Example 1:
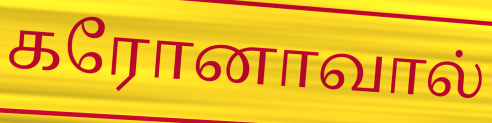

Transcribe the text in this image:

கரோனாவால்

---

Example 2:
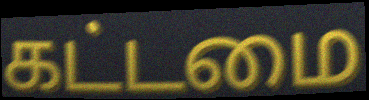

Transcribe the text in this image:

கட்டமை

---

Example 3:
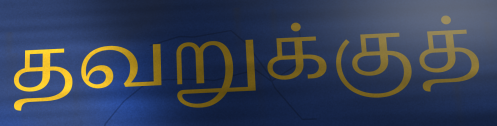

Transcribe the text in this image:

தவறுக்குத்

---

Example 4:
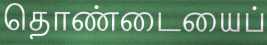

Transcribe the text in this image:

தொண்டையைப்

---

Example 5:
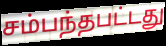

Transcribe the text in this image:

சம்பந்தபட்டது